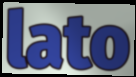
lato